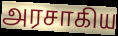
அரசாகிய